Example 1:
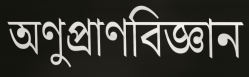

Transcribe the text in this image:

অণুপ্রাণবিজ্ঞান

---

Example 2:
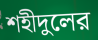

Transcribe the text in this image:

শহীদুলের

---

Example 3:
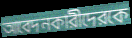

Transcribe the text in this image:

আবেদনকারীদেরকে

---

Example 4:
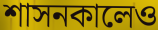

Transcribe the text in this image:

শাসনকালেও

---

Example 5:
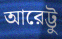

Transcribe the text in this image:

আরেট্টু